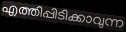
എത്തിപ്പിടിക്കാവുന്ന